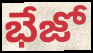
భేజో